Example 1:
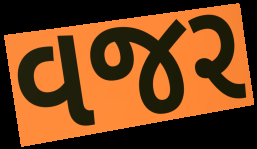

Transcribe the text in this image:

વજર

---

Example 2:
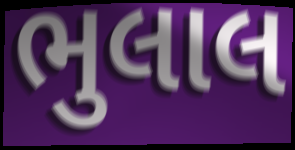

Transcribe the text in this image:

ભુલાલ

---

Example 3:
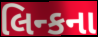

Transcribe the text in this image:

લિન્કના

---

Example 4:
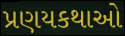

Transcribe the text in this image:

પ્રણયકથાઓ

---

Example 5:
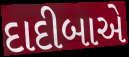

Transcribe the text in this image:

દાદીબાએ